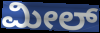
ಮೀಲ್